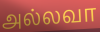
அல்லவா